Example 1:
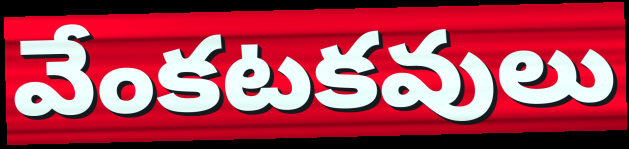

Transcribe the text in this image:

వేంకటకవులు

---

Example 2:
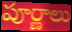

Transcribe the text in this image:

పూర్ణాలు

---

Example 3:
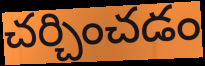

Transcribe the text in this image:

చర్చించడం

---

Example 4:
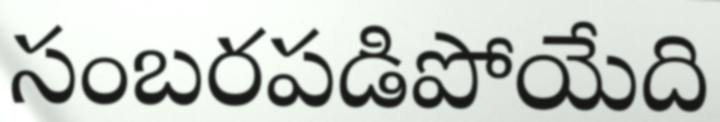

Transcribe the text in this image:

సంబరపడిపోయేది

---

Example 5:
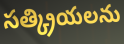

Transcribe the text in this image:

సత్క్రియలను